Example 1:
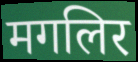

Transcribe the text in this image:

मगलिर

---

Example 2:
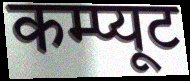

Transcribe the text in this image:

कम्प्यूट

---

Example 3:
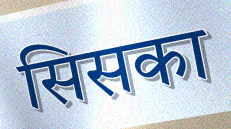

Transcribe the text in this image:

सिसका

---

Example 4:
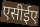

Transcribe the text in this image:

एसीईए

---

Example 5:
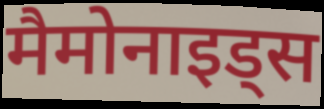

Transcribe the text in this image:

मैमोनाइड्स